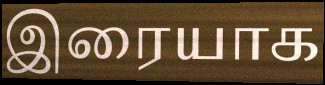
இரையாக